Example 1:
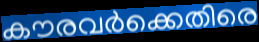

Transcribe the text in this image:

കൗരവർക്കെതിരെ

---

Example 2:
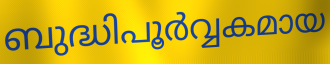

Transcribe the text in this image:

ബുദ്ധിപൂർവ്വകമായ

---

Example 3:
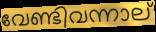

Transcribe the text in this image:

വേണ്ടിവന്നാല്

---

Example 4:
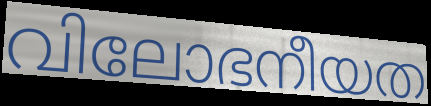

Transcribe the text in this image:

വിലോഭനീയത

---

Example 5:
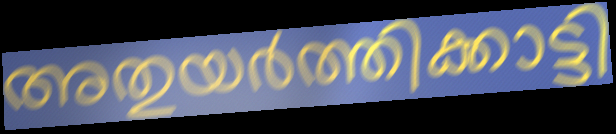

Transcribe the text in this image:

അതുയർത്തിക്കാട്ടി